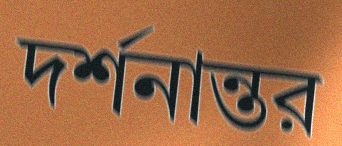
দর্শনান্তর